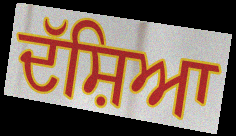
ਦੱਸ਼ਿਆ